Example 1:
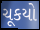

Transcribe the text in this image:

ચૂકયો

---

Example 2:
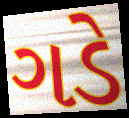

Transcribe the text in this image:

ગડે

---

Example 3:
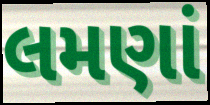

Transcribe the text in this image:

લમણાં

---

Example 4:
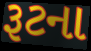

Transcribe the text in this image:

રૂટના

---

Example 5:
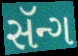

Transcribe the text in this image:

સૅન્ગ